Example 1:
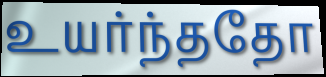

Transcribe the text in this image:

உயர்ந்ததோ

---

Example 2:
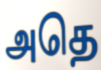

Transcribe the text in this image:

அதெ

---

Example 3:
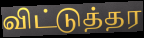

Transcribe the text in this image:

விட்டுத்தர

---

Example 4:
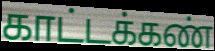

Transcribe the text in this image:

காட்டக்கண்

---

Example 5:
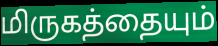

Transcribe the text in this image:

மிருகத்தையும்